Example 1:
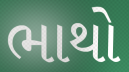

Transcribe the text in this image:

ભાથો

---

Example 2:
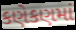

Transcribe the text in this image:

કણેકણમાં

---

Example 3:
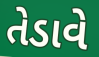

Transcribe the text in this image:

તેડાવે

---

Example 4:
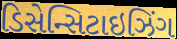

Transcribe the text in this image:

ડિસેન્સિટાઇઝિંગ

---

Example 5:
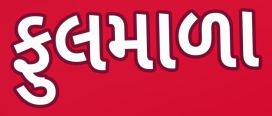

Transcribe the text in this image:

ફુલમાળા